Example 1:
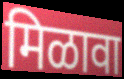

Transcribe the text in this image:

मिळावा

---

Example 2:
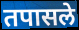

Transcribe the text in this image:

तपासले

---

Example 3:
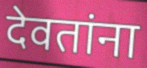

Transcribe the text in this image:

देवतांना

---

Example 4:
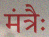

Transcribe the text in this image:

मंत्रैः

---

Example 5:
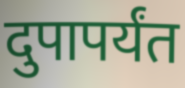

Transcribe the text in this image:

दुपापर्यंत